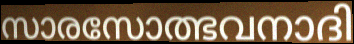
സാരസോത്ഭവനാദി